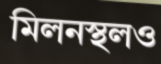
মিলনস্থলও